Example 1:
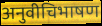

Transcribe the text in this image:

अनुवीचिभाषण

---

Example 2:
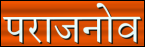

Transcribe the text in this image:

पराजनोव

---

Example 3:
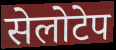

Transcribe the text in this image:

सेलोटेप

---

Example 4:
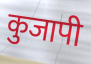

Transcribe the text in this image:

कुजापी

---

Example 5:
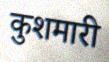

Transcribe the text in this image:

कुशमारी